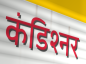
कंडिश्नर